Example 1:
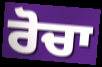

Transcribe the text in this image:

ਰੋਚਾ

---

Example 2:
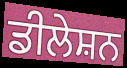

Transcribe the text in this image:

ਡੀਲੇਸ਼ਨ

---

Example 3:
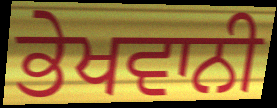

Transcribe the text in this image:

ਭੇਖਵਾਨੀ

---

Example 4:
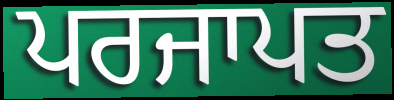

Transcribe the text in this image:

ਪਰਜਾਪਤ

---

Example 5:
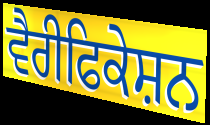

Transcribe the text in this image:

ਵੈਰੀਫਿਕੇਸ਼ਨ